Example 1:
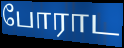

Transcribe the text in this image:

போராட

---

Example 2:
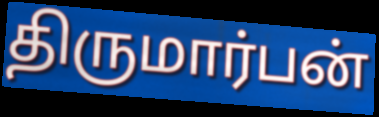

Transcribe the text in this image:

திருமார்பன்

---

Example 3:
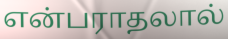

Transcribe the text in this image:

என்பராதலால்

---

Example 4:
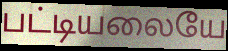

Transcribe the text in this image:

பட்டியலையே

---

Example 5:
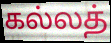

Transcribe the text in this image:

கல்லத்